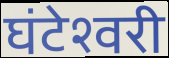
घंटेश्वरी